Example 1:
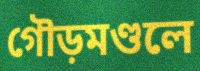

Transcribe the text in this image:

গৌড়মণ্ডলে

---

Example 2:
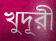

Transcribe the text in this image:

খুদূরী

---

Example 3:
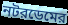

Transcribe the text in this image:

নটরডেমের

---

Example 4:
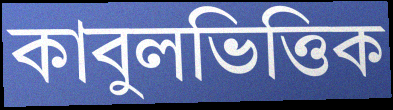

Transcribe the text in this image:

কাবুলভিত্তিক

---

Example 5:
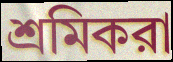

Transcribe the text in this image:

শ্রমিকরা